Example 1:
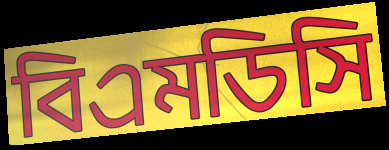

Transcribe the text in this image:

বিএমডিসি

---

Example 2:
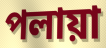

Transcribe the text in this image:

পলায়া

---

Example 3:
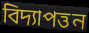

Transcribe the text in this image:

বিদ্যাপত্তন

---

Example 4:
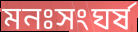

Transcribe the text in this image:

মনঃসংঘর্ষ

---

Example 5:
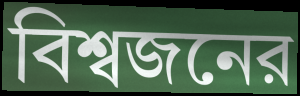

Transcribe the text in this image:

বিশ্বজনের